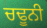
ਚਢੂਨੀ